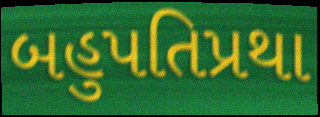
બહુપતિપ્રથા